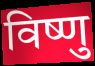
विष्णु